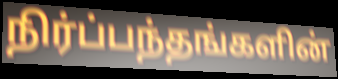
நிர்ப்பந்தங்களின்